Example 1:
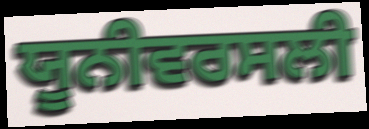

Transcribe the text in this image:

ਯੂਨੀਵਰਸਲੀ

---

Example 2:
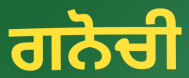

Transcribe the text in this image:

ਗਨੋਚੀ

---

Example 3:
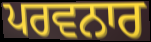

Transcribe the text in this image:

ਪਰਵਨਾਰ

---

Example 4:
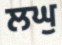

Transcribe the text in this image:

ਲਘੁ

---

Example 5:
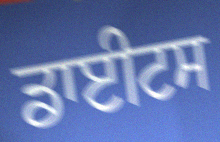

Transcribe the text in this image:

ਡਾਈਟਸ